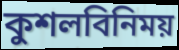
কুশলবিনিময়